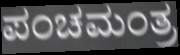
ಪಂಚಮಂತ್ರ